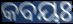
କବୟଃ